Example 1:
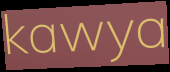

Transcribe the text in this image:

kawya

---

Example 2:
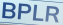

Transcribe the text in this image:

BPLR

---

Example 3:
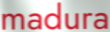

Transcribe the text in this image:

madura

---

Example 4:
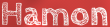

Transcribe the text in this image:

Hamon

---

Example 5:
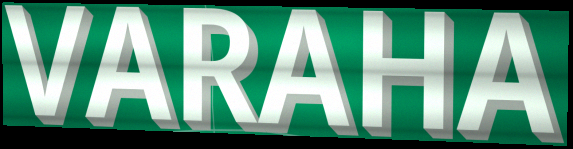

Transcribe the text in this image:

VARAHA